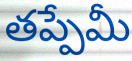
తప్పేమీ